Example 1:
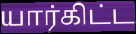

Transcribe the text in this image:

யார்கிட்ட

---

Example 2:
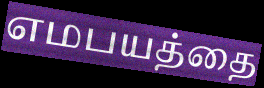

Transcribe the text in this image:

எமபயத்தை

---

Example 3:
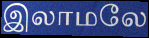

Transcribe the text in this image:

இலாமலே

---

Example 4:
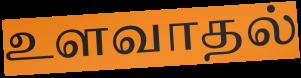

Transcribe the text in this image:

உளவாதல்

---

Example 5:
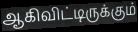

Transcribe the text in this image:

ஆகிவிட்டிருக்கும்